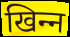
खिन्‍न